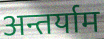
अन्तर्याम